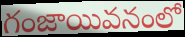
గంజాయివనంలో